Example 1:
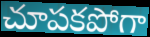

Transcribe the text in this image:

చూపకపోగా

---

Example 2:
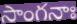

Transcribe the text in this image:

సాంగనాః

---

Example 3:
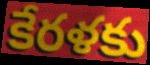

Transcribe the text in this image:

కేరళకు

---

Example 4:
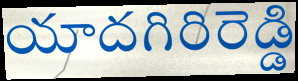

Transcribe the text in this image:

యాదగిరిరెడ్డి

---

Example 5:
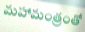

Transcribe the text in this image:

మహామంత్రంతో